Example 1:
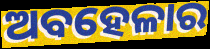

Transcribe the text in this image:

ଅବହେଳାର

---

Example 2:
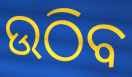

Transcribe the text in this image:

ଉଠିବ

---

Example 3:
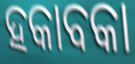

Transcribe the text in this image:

ହକାବକା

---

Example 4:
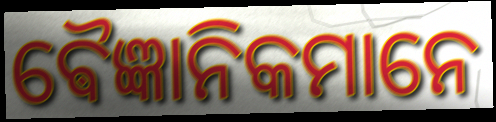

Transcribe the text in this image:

ଵୈଜ୍ଞାନିକମାନେ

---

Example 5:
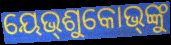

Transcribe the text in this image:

ୟେଭ୍‌ଶୁକୋଭ୍‌ଙ୍କୁ